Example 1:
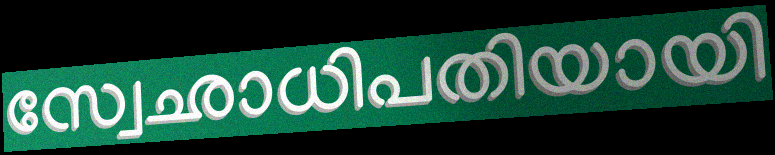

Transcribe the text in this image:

സ്വേഛാധിപതിയായി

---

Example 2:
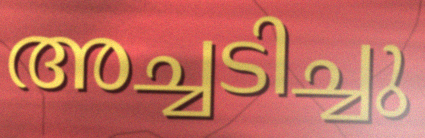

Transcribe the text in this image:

അച്ചടിച്ചു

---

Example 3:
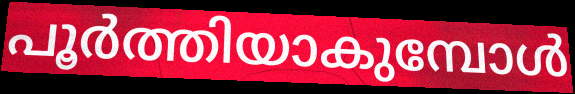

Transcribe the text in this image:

പൂർത്തിയാകുമ്പോൾ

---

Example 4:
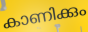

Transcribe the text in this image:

കാണിക്കും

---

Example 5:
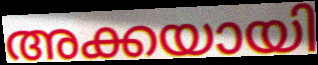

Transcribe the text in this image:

അക്കയായി